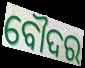
ବୌଦର